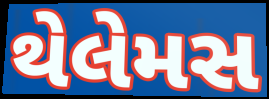
થેલેમસ